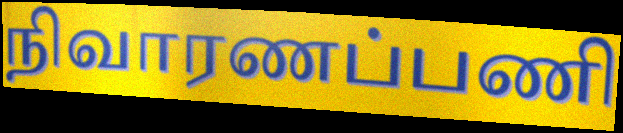
நிவாரணப்பணி